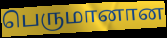
பெருமானான